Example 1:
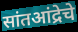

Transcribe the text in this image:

सांतआंद्रेचे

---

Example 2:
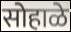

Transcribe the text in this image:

सोहाळे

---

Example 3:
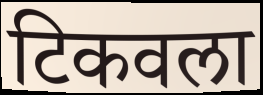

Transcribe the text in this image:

टिकवला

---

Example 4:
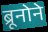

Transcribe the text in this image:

ब्रूनोने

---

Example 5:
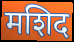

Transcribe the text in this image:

मशिद